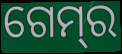
ଗେମ୍‌ର